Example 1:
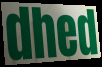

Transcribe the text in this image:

dhed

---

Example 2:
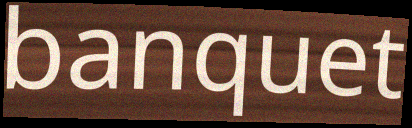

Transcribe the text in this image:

banquet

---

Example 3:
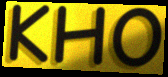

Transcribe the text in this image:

KHO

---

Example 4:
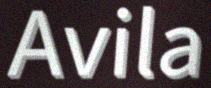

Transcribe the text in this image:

Avila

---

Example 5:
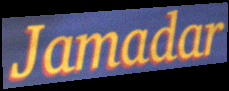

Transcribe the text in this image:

Jamadar